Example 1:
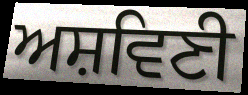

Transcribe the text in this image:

ਅਸ਼ਵਿਣੀ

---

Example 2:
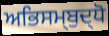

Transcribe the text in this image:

ਅਭਿਸਮ੍ਬੁਦ੍ਧੋ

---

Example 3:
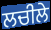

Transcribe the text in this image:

ਲਚੀਲੇ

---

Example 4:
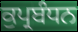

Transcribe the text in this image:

ਕੁਪ੍ਰਬੰਧਨ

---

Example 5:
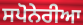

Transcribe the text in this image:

ਸਪੋਨੇਰੀਆ